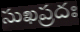
సుఖప్రదః